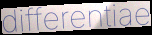
differentiae